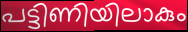
പട്ടിണിയിലാകും